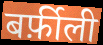
बर्फ़ीली